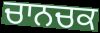
ਚਾਨਚਕ